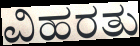
ವಿಹರತು